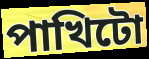
পাখিটো